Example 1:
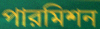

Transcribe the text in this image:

পারমিশন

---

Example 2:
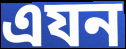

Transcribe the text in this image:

এযন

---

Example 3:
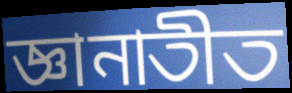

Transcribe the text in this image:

জ্ঞানাতীত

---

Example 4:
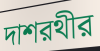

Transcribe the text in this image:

দাশরথীর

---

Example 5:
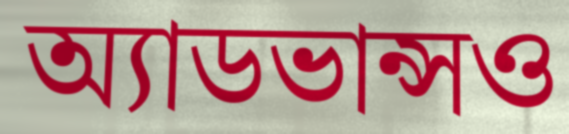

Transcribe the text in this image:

অ্যাডভান্সও